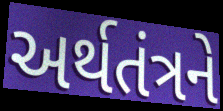
અર્થતંત્રને